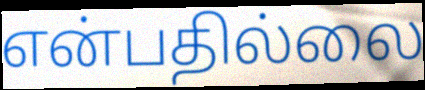
என்பதில்லை